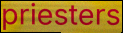
priesters